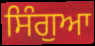
ਸਿੰਗੁਆ